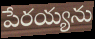
పేరయ్యను